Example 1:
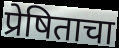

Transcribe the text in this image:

प्रेषिताचा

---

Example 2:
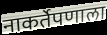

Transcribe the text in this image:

नाकर्तेपणाला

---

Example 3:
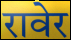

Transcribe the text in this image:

रावेर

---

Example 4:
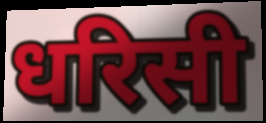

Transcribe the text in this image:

धरिसी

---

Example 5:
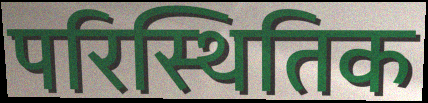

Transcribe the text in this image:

परिस्थितिक